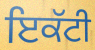
ਇਕੱਟੀ